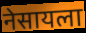
नेसायला